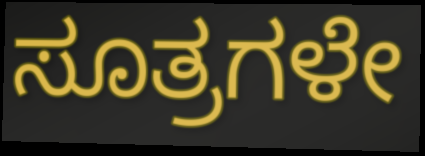
ಸೂತ್ರಗಳೇ